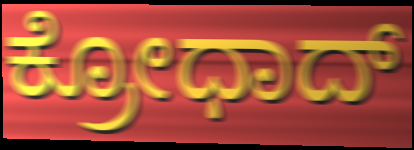
ಕ್ರೋಧಾದ್